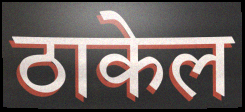
ठाकेल